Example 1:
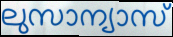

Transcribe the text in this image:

ലുസാന്യാസ്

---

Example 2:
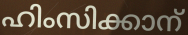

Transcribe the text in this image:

ഹിംസിക്കാന്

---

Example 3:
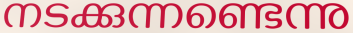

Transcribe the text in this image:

നടക്കുന്നണ്ടെന്നു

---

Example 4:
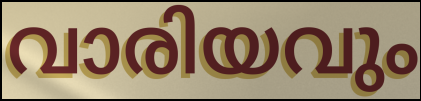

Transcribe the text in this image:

വാരിയവും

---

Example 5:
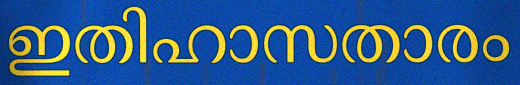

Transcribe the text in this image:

ഇതിഹാസതാരം